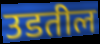
उडतील